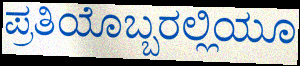
ಪ್ರತಿಯೊಬ್ಬರಲ್ಲಿಯೂ